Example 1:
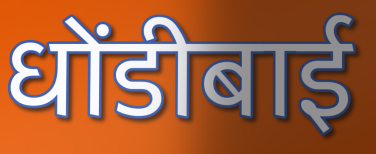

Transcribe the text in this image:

धोंडीबाई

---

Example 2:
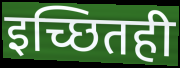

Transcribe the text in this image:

इच्छितही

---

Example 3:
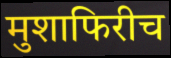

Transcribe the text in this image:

मुशाफिरीच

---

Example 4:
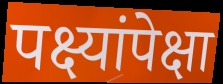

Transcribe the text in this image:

पक्ष्यांपेक्षा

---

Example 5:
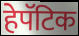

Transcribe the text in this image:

हेपॅटिक